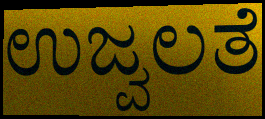
ಉಜ್ವಲತೆ